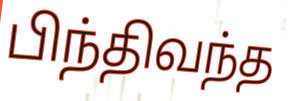
பிந்திவந்த